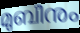
മുബീനും